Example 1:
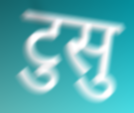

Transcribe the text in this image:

टुसु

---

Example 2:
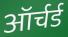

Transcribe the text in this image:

ऑर्चर्ड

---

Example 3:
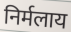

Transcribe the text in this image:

निर्मलाय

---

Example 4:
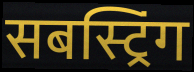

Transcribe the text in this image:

सबस्ट्रिंग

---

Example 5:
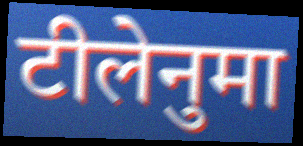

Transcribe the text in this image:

टीलेनुमा